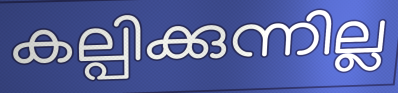
കല്പിക്കുന്നില്ല